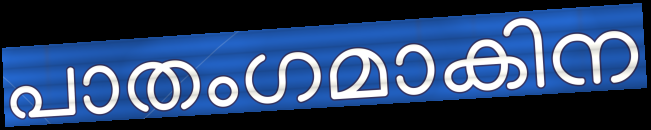
പാതംഗമാകിന